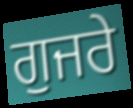
ਗੁਜਰੇ